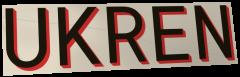
UKREN